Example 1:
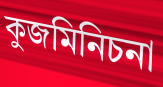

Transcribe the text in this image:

কুজমিনিচনা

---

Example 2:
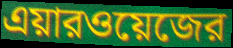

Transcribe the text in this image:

এয়ারওয়েজের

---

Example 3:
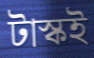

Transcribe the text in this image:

টাস্কই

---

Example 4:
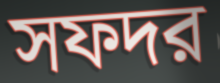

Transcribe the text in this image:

সফদর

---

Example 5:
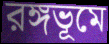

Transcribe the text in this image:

রঙ্গভূমে